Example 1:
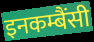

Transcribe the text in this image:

इनकम्बैंसी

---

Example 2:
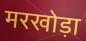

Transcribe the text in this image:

मरखोड़ा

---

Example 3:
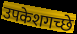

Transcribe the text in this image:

उपकेशगच्छे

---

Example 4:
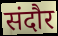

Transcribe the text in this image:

संदौर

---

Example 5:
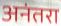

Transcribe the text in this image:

अनंतरा